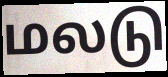
மலடு